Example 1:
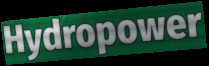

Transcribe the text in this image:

Hydropower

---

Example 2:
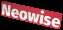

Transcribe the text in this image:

Neowise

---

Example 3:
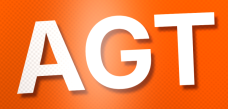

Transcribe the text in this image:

AGT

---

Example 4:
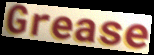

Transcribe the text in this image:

Grease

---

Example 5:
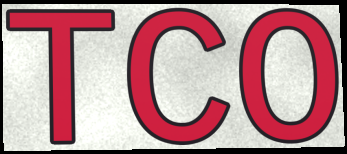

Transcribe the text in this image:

TCO